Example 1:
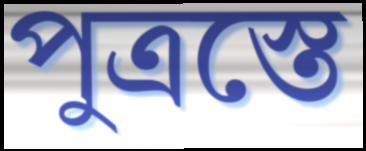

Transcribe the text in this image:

পুত্রস্তে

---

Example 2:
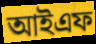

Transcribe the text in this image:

আইএফ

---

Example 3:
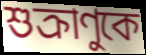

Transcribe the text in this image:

শুক্রাণুকে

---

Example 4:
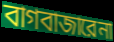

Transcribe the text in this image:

বাগবাজারেনা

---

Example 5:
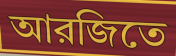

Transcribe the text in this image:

আরজিতে